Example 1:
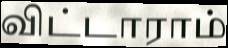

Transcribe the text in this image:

விட்டாராம்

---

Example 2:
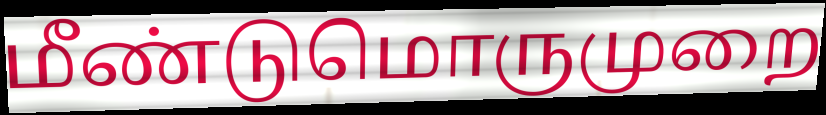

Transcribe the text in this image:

மீண்டுமொருமுறை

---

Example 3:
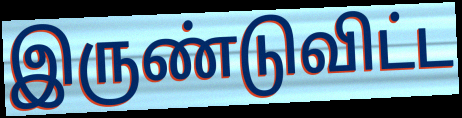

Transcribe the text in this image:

இருண்டுவிட்ட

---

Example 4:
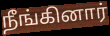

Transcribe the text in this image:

நீங்கினார்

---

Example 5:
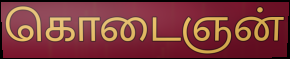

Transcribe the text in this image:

கொடைஞன்